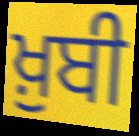
ਖ਼ੁਬੀ